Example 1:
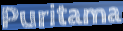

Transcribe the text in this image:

Puritama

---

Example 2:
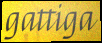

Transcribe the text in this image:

gattiga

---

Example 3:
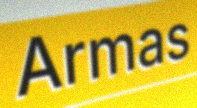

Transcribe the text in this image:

Armas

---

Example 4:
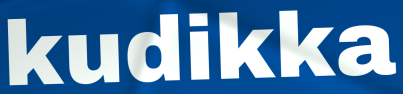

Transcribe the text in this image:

kudikka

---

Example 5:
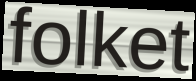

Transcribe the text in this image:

folket